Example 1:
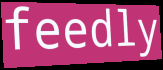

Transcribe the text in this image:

feedly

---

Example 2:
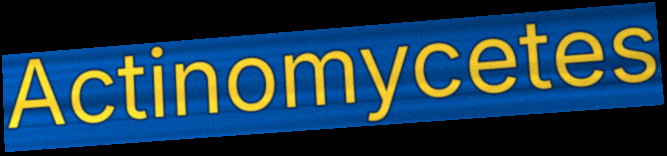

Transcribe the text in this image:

Actinomycetes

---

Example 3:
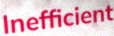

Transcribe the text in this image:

Inefficient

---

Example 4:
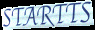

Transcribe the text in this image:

STARTTS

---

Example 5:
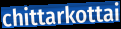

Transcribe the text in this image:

chittarkottai